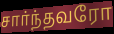
சார்ந்தவரோ